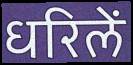
धरिलें